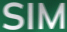
SIM